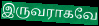
இருவராகவே